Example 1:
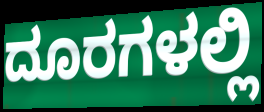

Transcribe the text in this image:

ದೂರಗಳಲ್ಲಿ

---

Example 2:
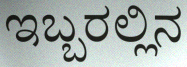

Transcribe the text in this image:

ಇಬ್ಬರಲ್ಲಿನ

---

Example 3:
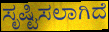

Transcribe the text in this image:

ಸೃಷ್ಟಿಸಲಾಗಿದೆ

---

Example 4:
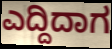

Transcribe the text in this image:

ಎದ್ದಿದಾಗ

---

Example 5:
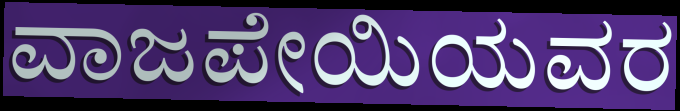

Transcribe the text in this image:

ವಾಜಪೇಯಿಯವರ